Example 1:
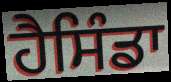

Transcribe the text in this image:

ਹੈਸਿੰਡਾ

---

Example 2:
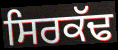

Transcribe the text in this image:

ਸਿਰਕੱਢ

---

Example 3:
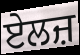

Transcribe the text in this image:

ਏਲਜ਼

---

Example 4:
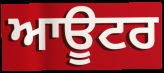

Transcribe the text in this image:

ਆਊਟਰ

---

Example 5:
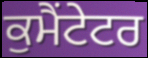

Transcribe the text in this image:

ਕੁਮੈਂਟੇਟਰ